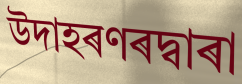
উদাহৰণৰদ্বাৰা